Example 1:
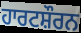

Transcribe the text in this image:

ਹਾਰਟਸ਼ੌਰਨ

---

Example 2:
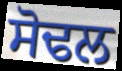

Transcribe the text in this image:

ਸੋਢਲ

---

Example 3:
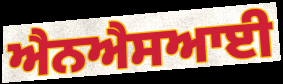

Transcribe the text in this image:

ਐਨਐਸਆਈ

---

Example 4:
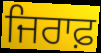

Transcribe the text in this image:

ਜਿਰਾਫ਼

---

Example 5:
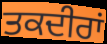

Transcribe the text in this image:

ਤਕਦੀਰਾਂ